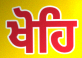
ਖੋਹਿ